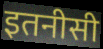
इतनीसी